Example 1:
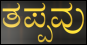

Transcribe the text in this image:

ತಪ್ಪವು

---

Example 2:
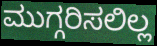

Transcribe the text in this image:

ಮುಗ್ಗರಿಸಲಿಲ್ಲ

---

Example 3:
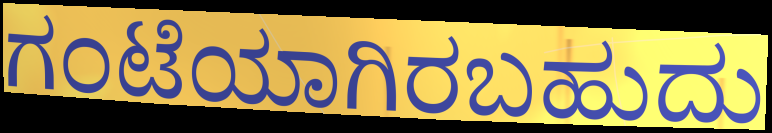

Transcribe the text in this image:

ಗಂಟೆಯಾಗಿರಬಹುದು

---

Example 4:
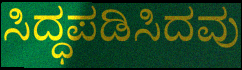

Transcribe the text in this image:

ಸಿದ್ಧಪಡಿಸಿದವು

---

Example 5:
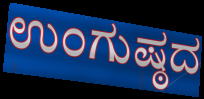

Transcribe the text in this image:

ಉಂಗುಷ್ಠದ